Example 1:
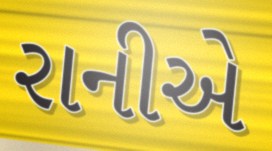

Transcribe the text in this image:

રાનીએ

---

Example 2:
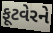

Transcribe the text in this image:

ફૂટવેરને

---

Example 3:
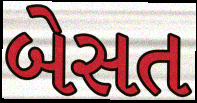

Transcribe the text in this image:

બેસત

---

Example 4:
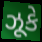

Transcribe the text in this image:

ઝૂકે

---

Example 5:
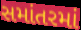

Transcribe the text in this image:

સમાંતરમાં